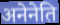
अनेनेति